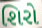
શિરો